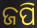
ଜପି